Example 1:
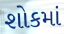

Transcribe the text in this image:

શોકમાં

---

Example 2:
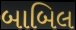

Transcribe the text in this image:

બાબિલ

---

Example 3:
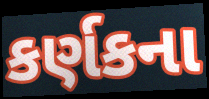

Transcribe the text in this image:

કર્ણકના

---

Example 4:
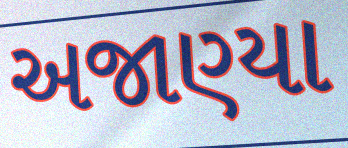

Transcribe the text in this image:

અજાણ્યા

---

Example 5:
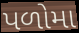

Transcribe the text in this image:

પળોમા